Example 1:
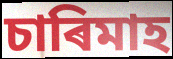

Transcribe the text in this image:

চাৰিমাহ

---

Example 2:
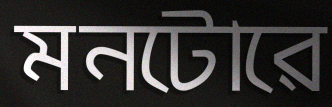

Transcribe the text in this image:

মনটোৱে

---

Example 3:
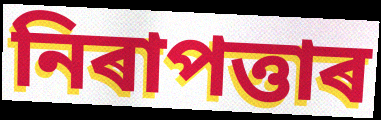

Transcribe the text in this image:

নিৰাপত্তাৰ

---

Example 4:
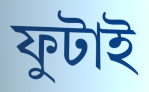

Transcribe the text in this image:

ফুটাই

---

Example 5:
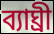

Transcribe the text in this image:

ব্যাঘ্ৰী